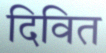
दिवित